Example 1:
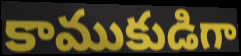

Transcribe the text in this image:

కాముకుడిగా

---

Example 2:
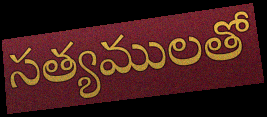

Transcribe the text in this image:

సత్యములతో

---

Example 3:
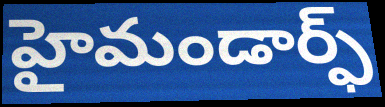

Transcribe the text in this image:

హైమండార్ఫ్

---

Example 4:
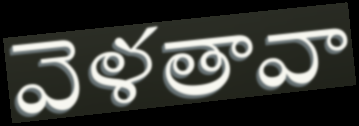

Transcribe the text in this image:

వెళతావా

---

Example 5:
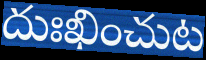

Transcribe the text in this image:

దుఃఖించుట